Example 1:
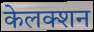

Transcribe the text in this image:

केलक्शन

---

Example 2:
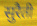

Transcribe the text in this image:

सुरैती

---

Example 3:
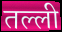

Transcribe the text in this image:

तल्ली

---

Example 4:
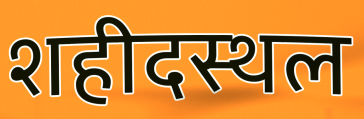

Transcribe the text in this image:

शहीदस्थल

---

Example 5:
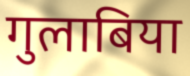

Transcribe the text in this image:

गुलाबिया